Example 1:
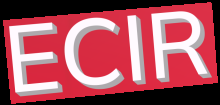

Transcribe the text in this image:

ECIR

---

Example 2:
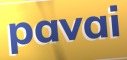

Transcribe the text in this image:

pavai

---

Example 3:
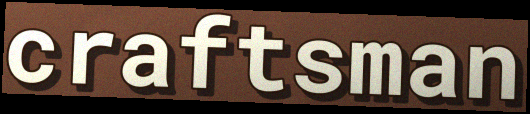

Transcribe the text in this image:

craftsman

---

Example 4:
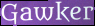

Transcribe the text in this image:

Gawker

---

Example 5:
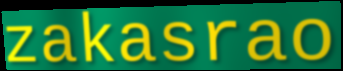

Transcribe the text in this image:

zakasrao